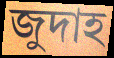
জুদাহ